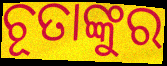
ଚୂତାଙ୍କୁର